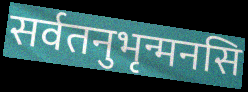
सर्वतनुभृन्मनसि